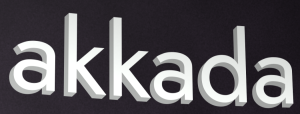
akkada